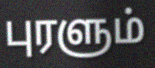
புரளும்